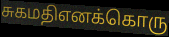
சுகமதிஎனக்கொரு